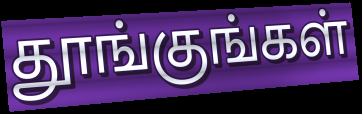
தூங்குங்கள்